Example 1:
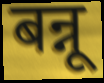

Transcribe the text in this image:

बन्नू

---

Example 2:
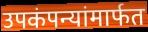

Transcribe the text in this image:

उपकंपन्यांमार्फत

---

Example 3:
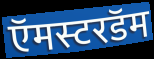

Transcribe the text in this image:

ऍमस्टरडॅम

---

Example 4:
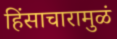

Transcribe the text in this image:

हिंसाचारामुळं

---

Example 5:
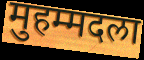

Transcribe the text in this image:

मुहम्मदला